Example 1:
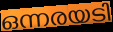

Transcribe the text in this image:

ഒന്നരയടി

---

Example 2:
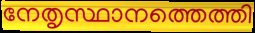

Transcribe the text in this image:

നേതൃസ്ഥാനത്തെത്തി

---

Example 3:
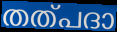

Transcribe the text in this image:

തത്പദാ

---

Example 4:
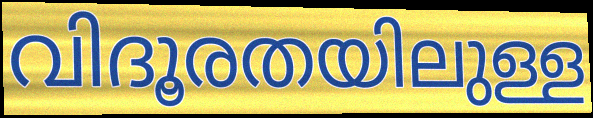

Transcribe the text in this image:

വിദൂരതയിലുള്ള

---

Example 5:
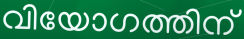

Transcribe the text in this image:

വിയോഗത്തിന്